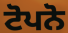
ਟੋਪਨੋ